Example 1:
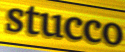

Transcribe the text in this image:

stucco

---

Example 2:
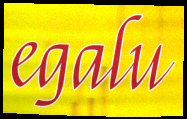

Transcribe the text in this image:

egalu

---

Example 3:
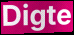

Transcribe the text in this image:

Digte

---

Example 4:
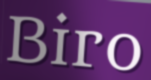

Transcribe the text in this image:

Biro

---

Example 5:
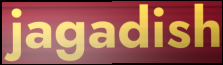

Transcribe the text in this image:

jagadish